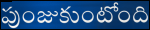
పుంజుకుంటోంది